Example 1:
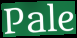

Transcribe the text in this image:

Pale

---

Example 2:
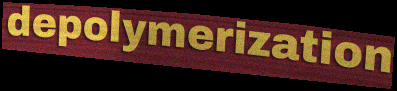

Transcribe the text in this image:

depolymerization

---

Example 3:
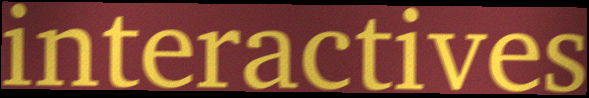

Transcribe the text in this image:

interactives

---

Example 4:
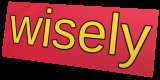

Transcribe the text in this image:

wisely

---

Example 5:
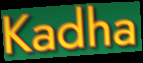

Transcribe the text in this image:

Kadha